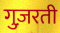
गुज़रती